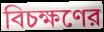
বিচক্ষণের